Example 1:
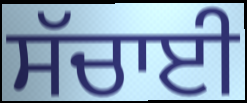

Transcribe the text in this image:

ਸੱਚਾਈ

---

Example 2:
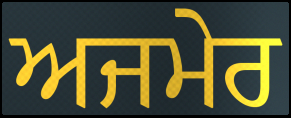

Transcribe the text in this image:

ਅਜਮੇਰ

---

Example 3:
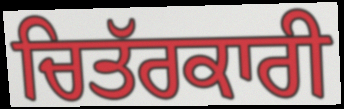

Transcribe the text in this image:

ਚਿਤੱਰਕਾਰੀ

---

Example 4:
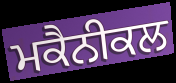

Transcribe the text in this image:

ਮਕੈਨੀਕਲ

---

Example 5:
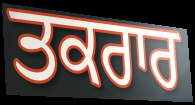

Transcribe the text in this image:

ਤਕਰਾਰ